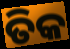
ତିକ